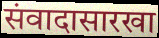
संवादासारखा